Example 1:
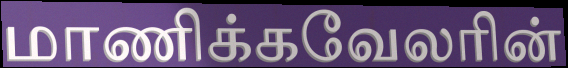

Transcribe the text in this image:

மாணிக்கவேலரின்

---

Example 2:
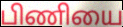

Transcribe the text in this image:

பிணியை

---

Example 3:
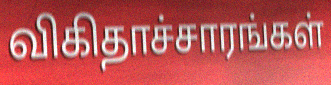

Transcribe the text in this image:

விகிதாச்சாரங்கள்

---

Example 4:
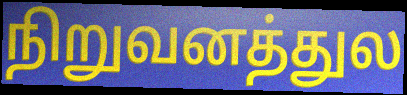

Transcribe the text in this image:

நிறுவனத்துல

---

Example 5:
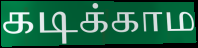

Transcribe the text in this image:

கடிக்காம